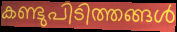
കണ്ടുപിടിത്തങ്ങൾ